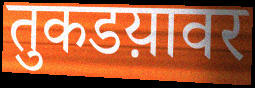
तुकडय़ावर